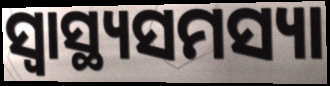
ସ୍ୱାସ୍ଥ୍ୟସମସ୍ୟା